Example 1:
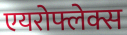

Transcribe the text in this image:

एयरोफ्लेक्स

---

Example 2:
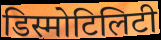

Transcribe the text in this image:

डिस्मोटिलिटी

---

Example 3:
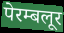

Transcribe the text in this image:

पेरम्बलूर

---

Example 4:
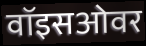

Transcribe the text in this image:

वॉइसओवर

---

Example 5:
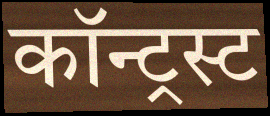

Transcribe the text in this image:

कॉन्ट्रस्ट